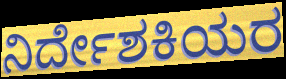
ನಿರ್ದೇಶಕಿಯರ